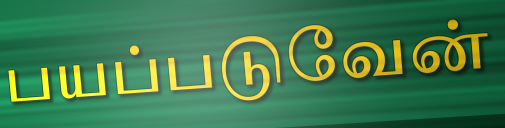
பயப்படுவேன்